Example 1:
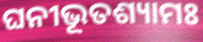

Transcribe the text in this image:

ଘନୀଭୂତଶ୍ୟାମଃ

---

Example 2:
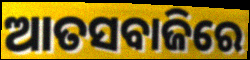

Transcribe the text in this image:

ଆତସବାଜିରେ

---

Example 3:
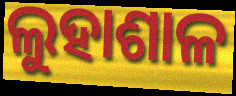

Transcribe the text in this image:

ଲୁହାଶାଳ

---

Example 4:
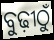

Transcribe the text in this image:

ବୁଢ଼ୀଠୁଁ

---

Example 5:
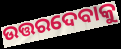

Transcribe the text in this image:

ଉତ୍ତରଦେବାକୁ